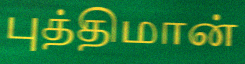
புத்திமான்